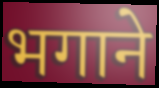
भगाने